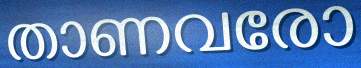
താണവരോ